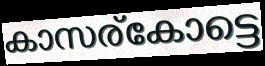
കാസര്കോട്ടെ